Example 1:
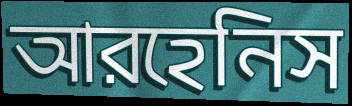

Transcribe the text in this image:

আরহেনিস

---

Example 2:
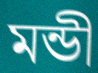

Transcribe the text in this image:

মন্ডী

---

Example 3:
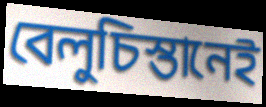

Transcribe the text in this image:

বেলুচিস্তানেই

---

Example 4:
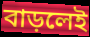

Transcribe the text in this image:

বাড়লেই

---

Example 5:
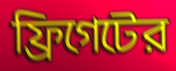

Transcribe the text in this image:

ফ্রিগেটের